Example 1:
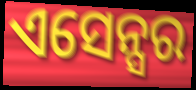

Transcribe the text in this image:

ଏସେନ୍ସର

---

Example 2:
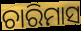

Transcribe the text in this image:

ଚାରିମାସ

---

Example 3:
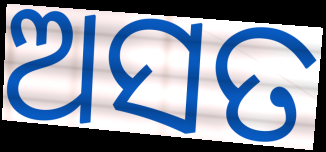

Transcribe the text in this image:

ଅସତ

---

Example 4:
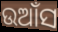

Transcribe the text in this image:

ଉଆଁସ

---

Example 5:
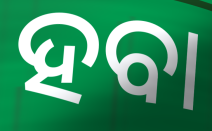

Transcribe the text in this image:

ହବା